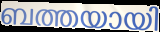
ബത്തയായി